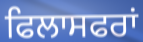
ਫਿਲਾਸਫਰਾਂ